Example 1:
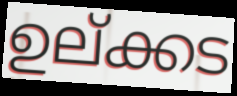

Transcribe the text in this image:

ഉല്ക്കട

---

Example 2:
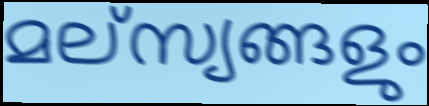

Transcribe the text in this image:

മല്സ്യങ്ങളും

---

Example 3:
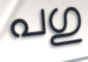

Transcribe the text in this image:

പഗു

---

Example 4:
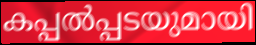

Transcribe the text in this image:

കപ്പൽപ്പടയുമായി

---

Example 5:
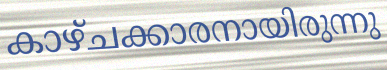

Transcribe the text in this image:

കാഴ്ചക്കാരനായിരുന്നു